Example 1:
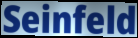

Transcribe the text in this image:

Seinfeld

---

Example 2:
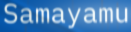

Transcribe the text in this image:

Samayamu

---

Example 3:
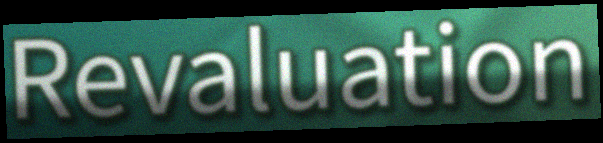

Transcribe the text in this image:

Revaluation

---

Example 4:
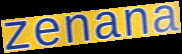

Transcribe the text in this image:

zenana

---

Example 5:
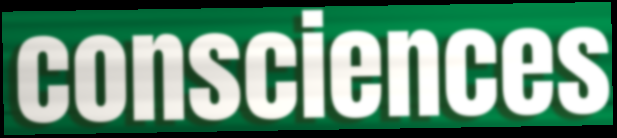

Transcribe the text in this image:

consciences